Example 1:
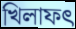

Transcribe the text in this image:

খিলাফৎ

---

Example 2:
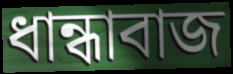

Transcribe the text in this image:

ধান্ধাবাজ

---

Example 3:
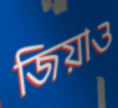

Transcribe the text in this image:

জিয়াও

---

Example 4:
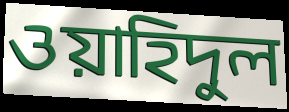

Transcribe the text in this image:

ওয়াহিদুল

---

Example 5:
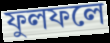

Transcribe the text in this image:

ফুলফলে